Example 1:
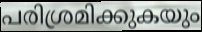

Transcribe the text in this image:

പരിശ്രമിക്കുകയും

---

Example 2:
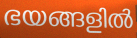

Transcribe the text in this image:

ഭയങ്ങളിൽ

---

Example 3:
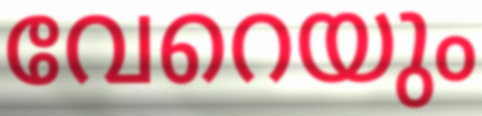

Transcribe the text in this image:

വേറെയും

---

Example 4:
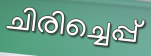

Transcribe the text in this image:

ചിരിച്ചെപ്പ്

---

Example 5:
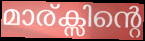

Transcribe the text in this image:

മാര്ക്സിന്റെ